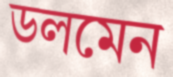
ডলমেন